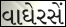
વાઘેરસેં